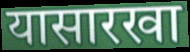
यासारखा